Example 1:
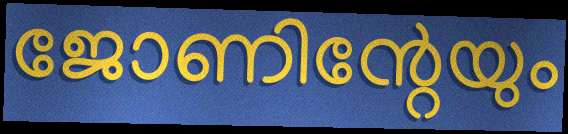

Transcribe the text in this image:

ജോണിന്റേയും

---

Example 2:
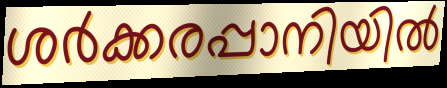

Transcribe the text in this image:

ശർക്കരപ്പാനിയിൽ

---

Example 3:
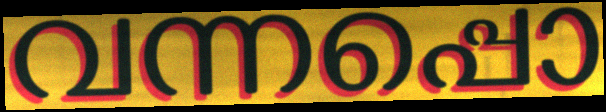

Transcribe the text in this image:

വന്നപ്പൊ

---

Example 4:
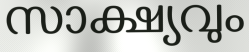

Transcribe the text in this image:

സാക്ഷ്യവും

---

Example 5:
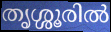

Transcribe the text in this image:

തൃശ്ശൂരിൽ